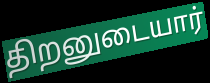
திறனுடையார்